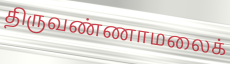
திருவண்ணாமலைக்